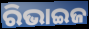
ରିଭାଇଜ